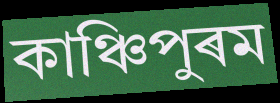
কাঞ্চিপুৰম